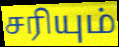
சரியும்